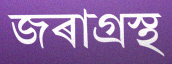
জৰাগ্ৰস্থ